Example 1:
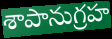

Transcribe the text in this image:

శాపానుగ్రహ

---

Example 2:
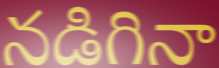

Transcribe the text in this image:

నడిగినా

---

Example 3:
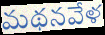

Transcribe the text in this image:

మథనవేళ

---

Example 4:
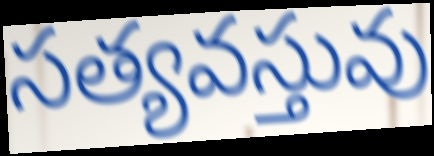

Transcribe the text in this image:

సత్యవస్తువు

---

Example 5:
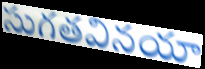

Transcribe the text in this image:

సుగతవినయా